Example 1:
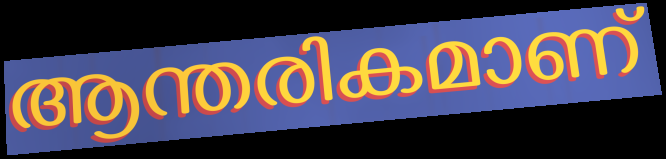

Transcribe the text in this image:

ആന്തരികമാണ്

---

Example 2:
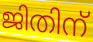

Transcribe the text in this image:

ജിതിന്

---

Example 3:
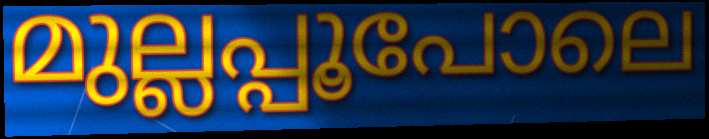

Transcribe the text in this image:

മുല്ലപ്പൂപോലെ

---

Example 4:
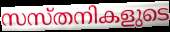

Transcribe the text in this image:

സസ്തനികളുടെ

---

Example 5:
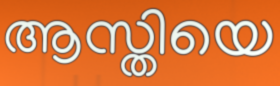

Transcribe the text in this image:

ആസ്തിയെ